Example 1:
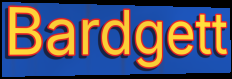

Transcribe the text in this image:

Bardgett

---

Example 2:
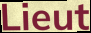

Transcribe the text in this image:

Lieut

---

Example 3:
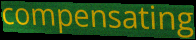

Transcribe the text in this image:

compensating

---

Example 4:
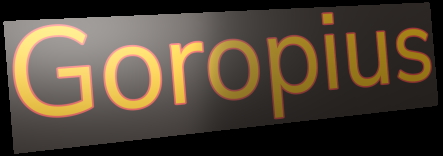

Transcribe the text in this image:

Goropius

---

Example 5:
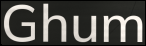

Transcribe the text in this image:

Ghum